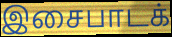
இசைபாடக்